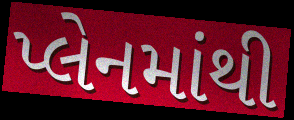
પ્લેનમાંથી